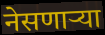
नेसणाऱ्या